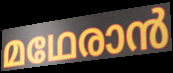
മഥേരാൻ